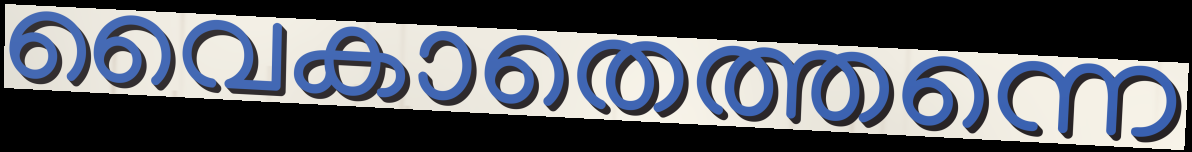
വൈകാതെത്തന്നെ